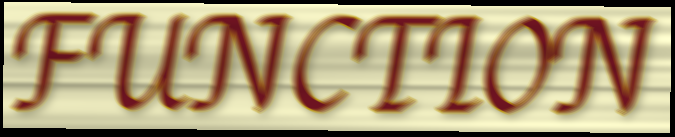
FUNCTION